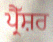
ਪ੍ਰੈੱਸ਼ਰ